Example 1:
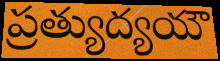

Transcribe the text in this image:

ప్రత్యుద్యయౌ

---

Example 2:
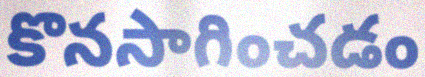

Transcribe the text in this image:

కొనసాగించడం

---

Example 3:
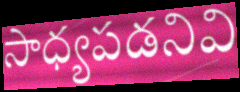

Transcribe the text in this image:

సాధ్యపడనివి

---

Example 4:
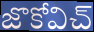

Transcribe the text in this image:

జొకోవిచ్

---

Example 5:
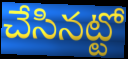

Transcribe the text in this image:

చేసినట్టో